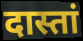
दास्तां